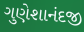
ગુણેશાનંદજી